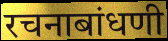
रचनाबांधणी